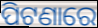
ପିଟଣାରେ